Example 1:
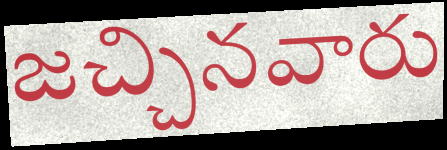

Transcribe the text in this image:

జచ్చినవారు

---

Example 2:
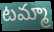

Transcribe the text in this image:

టమ్మా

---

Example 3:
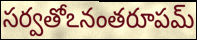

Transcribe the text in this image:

సర్వతోఽనంతరూపమ్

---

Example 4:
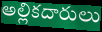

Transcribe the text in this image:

అల్లికదారులు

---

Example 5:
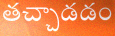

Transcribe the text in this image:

తచ్చాడడం